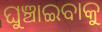
ଘୁଞ୍ଚାଇବାକୁ